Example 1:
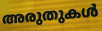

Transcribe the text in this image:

അരുതുകൾ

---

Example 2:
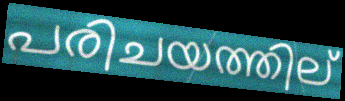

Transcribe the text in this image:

പരിചയത്തില്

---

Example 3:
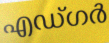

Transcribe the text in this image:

എഡ്ഗർ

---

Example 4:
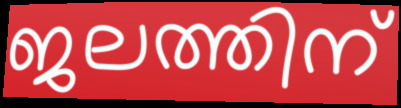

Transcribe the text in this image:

ജലത്തിന്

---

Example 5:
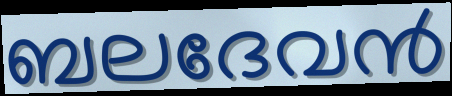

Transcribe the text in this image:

ബലദേവൻ